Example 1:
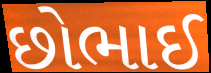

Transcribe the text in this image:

છોભાઈ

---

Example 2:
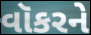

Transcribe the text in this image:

વૉકરને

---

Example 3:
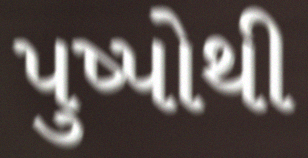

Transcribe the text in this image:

પુષ્પોથી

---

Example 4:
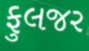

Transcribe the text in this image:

ફુલજર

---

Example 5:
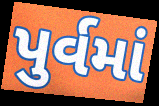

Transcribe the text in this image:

પુર્વમાં